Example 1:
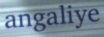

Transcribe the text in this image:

angaliye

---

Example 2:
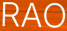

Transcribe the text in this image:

RAO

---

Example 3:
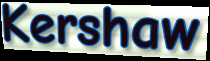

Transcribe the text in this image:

Kershaw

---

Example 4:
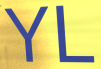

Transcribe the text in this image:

YL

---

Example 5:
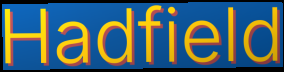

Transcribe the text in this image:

Hadfield